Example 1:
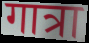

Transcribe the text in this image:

गात्रा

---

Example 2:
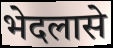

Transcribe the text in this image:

भेदलासे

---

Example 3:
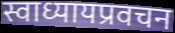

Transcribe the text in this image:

स्वाध्यायप्रवचन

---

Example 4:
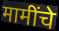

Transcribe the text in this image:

मामींचे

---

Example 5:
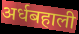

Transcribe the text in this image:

अर्धबहाली